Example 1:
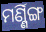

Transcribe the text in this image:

ମର୍ଣ୍ଣିଙ୍ଗ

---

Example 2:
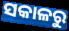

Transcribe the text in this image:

ସକାଳରୁ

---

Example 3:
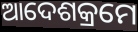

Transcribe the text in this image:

ଆଦେଶକ୍ରମେ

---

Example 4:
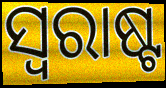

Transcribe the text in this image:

ସ୍ୱରାଷ୍ଟ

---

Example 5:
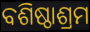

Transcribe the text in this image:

ବଶିଷ୍ଠାଶ୍ରମ